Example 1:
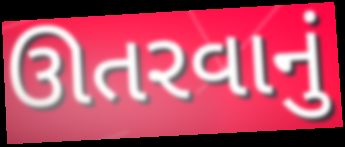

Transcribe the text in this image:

ઊતરવાનું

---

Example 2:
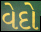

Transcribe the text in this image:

વેદો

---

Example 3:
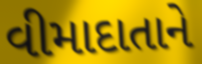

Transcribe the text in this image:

વીમાદાતાને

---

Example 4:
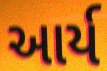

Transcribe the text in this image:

આર્ય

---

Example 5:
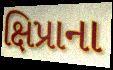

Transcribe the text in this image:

ક્ષિપ્રાના